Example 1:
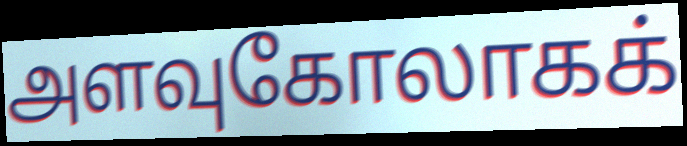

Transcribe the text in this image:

அளவுகோலாகக்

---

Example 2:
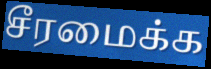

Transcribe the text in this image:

சீரமைக்க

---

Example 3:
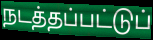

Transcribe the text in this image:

நடத்தப்பட்டுப்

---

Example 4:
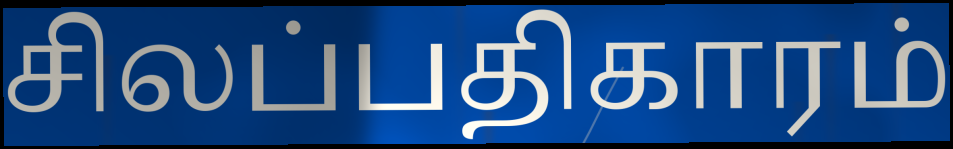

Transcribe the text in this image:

சிலப்பதிகாரம்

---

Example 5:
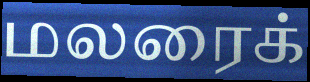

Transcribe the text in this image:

மலரைக்